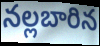
నల్లబారిన